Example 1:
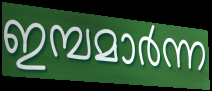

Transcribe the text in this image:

ഇമ്പമാർന്ന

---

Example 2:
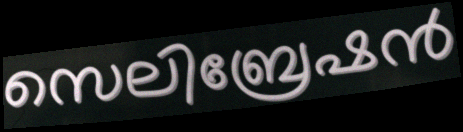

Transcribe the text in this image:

സെലിബ്രേഷൻ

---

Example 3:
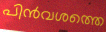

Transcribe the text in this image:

പിൻവശത്തെ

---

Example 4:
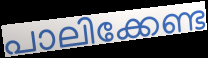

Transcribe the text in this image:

പാലിക്കേണ്ട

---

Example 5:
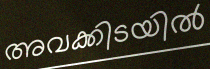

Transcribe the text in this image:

അവക്കിടയിൽ